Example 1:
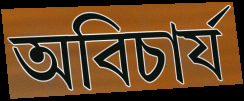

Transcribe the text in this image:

অবিচার্য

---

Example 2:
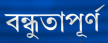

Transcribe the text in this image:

বন্ধুতাপূর্ণ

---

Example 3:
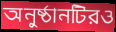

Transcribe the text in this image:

অনুষ্ঠানটিরও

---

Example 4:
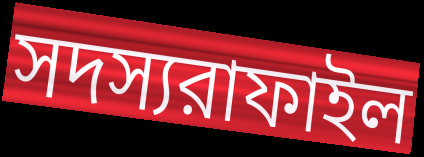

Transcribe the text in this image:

সদস্যরাফাইল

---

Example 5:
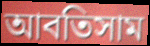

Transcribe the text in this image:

আবতিসাম